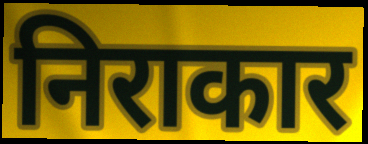
निराकार